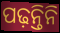
ପଢ଼ନ୍ତିନି